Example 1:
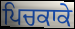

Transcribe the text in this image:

ਪਿਚਕਾਕੇ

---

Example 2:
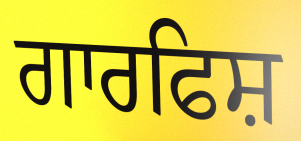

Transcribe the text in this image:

ਗਾਰਫਿਸ਼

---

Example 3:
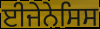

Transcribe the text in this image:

ਈਜੇਨੇਸਿਸ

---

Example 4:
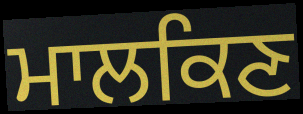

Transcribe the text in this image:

ਮਾਲਕਿਣ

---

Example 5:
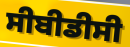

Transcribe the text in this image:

ਸੀਬੀਡੀਸੀ